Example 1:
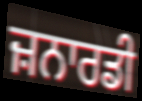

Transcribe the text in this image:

ਜ਼ਨਾਰਡੀ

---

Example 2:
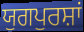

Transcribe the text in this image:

ਯੁਗਪੁਰਸ਼ਾਂ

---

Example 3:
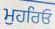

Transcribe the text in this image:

ਮੁਹਰਿਓ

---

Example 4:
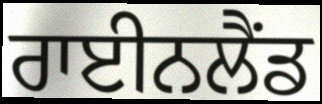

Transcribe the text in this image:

ਰਾਈਨਲੈਂਡ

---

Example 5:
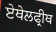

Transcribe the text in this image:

ਏਥੇਲਫ੍ਰੀਥ